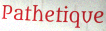
Pathetique